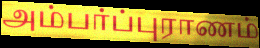
அம்பர்ப்புராணம்